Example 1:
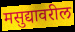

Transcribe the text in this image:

मसुद्यावरील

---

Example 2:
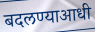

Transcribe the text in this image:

बदलण्याआधी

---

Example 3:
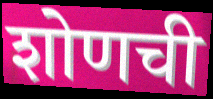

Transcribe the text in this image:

शोणची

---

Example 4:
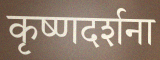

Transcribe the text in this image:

कृष्णदर्शना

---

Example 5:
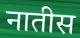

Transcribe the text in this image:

नातीस